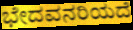
ಭೇದವನರಿಯದೆ